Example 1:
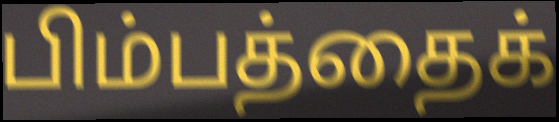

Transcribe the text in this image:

பிம்பத்தைக்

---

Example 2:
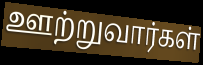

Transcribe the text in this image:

ஊற்றுவார்கள்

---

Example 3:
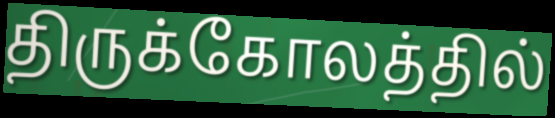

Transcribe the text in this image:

திருக்கோலத்தில்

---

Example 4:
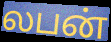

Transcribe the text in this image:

லபன்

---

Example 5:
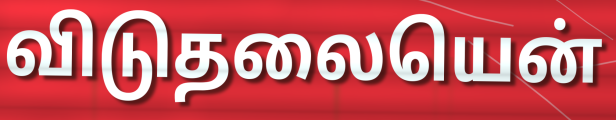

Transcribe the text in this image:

விடுதலையென்